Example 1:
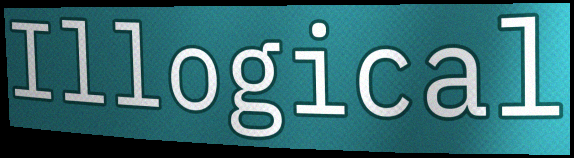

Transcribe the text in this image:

Illogical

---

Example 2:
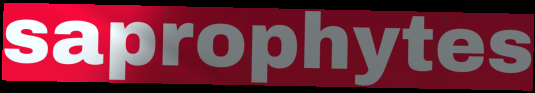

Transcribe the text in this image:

saprophytes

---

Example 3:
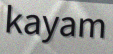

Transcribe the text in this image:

kayam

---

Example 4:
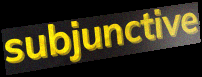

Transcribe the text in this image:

subjunctive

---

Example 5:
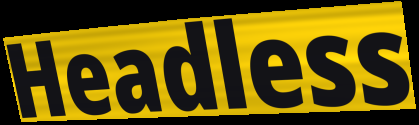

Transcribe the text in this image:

Headless